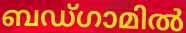
ബഡ്ഗാമിൽ